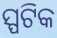
ସ୍ପଟିକ